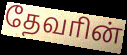
தேவரின்